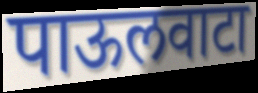
पाऊलवाटा